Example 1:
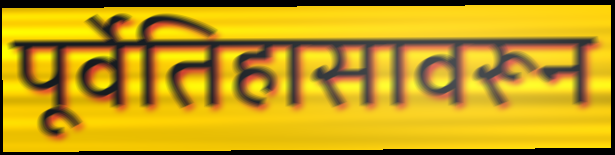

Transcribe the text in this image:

पूर्वेतिहासावरून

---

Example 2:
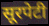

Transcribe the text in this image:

सूरपेटी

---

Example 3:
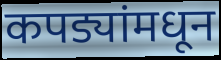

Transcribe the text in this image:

कपड्यांमधून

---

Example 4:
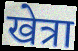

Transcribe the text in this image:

खेत्रा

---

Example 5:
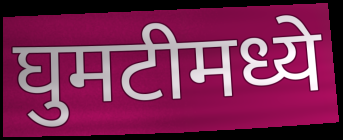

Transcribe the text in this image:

घुमटीमध्ये